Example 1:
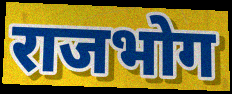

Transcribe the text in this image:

राजभोग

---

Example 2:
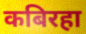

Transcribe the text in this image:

कबिरहा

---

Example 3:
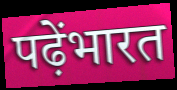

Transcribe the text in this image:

पढ़ेंभारत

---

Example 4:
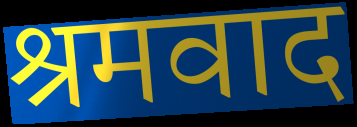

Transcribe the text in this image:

श्रमवाद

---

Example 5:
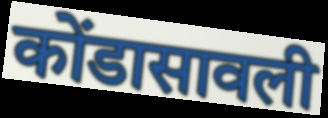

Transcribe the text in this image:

कोंडासावली